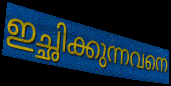
ഇച്ഛിക്കുന്നവനെ